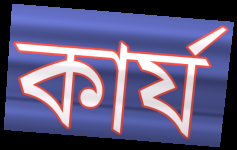
কার্য